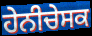
ਹੇਨੀਚੇਸਕ